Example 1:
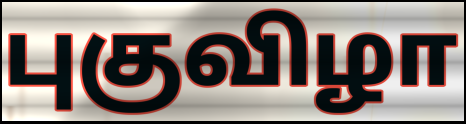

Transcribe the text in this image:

புகுவிழா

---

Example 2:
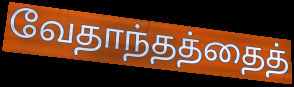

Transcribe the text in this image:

வேதாந்தத்தைத்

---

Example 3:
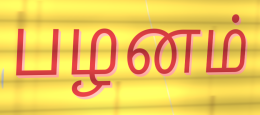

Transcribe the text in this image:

பழனம்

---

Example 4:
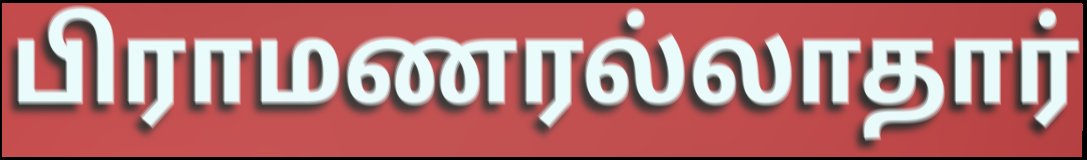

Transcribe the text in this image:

பிராமணரல்லாதார்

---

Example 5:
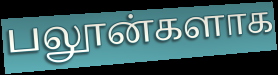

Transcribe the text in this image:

பலூன்களாக